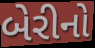
બેરીનો